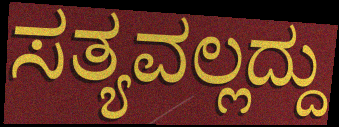
ಸತ್ಯವಲ್ಲದ್ದು